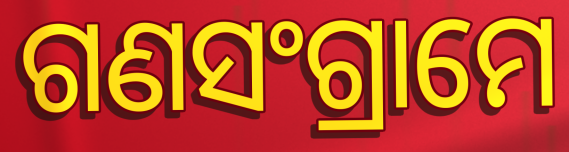
ଗଣସଂଗ୍ରାମେ